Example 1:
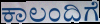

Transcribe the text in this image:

ಕಾಲಂದಿಗೆ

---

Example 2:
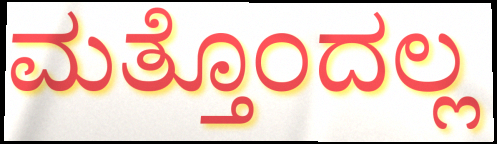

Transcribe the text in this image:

ಮತ್ತೊಂದಲ್ಲ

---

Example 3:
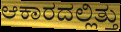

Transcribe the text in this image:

ಆಕಾರದಲ್ಲಿತ್ತು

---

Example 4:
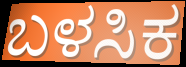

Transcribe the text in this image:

ಬಳಸಿಕ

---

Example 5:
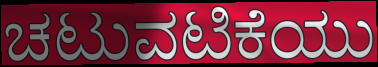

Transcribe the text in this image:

ಚಟುವಟಿಕೆಯು